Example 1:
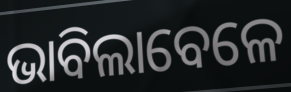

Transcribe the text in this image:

ଭାବିଲାବେଳେ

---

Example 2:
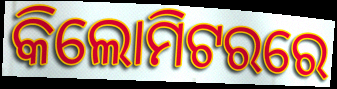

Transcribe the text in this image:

କିଲୋମିଟରରେ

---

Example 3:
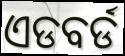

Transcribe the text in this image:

ଏଡବର୍ଡ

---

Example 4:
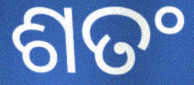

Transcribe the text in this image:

ଶତଂ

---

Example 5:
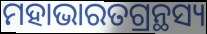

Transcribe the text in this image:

ମହାଭାରତଗ୍ରନ୍ଥସ୍ୟ